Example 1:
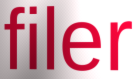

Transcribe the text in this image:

filer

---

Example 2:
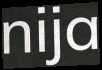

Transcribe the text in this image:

nija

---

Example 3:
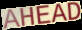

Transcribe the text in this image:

AHEAD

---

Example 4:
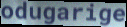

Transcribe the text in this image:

odugarige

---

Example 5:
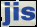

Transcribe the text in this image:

jis